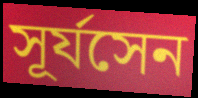
সূর্যসেন